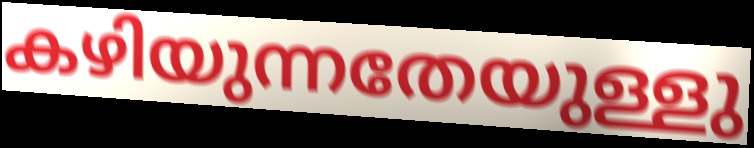
കഴിയുന്നതേയുള്ളു